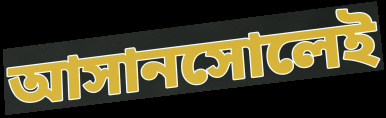
আসানসোলেই